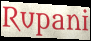
Rupani